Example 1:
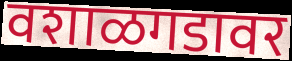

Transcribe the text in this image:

वशाळगडावर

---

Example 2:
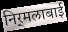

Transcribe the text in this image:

निर्मलाबाई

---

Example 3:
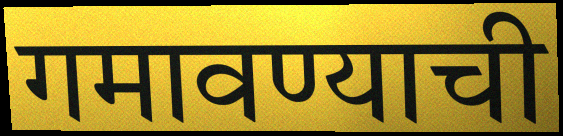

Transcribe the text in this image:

गमावण्याची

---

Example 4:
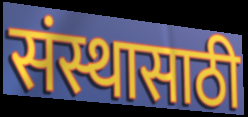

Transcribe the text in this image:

संस्थासाठी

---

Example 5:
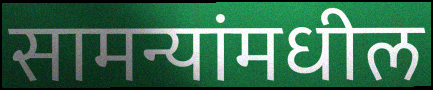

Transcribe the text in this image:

सामन्यांमधील